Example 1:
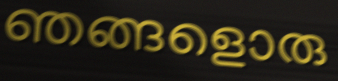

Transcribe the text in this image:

ഞങ്ങളൊരു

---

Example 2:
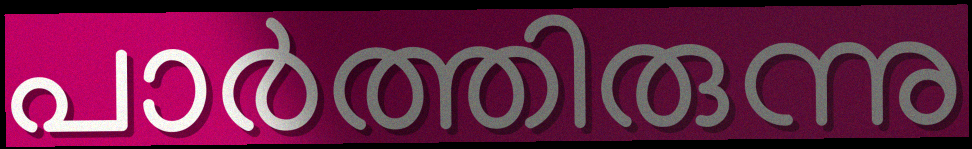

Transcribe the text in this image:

പാർത്തിരുന്നു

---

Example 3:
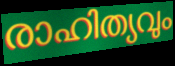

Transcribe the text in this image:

രാഹിത്യവും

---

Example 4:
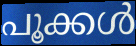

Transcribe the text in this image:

പൂക്കൾ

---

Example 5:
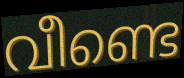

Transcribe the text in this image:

വീണ്ടെ